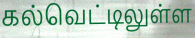
கல்வெட்டிலுள்ள